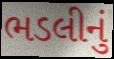
ભડલીનું